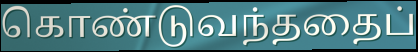
கொண்டுவந்ததைப்